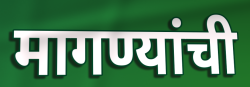
मागण्यांची